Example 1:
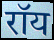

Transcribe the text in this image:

रॉय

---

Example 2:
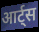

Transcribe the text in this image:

आर्ट्स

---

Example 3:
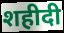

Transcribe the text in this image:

शहीदी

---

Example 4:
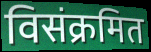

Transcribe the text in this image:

विसंक्रमित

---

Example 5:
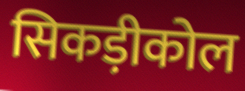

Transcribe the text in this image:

सिकड़ीकोल